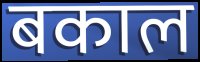
बकाल